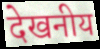
देखनीय